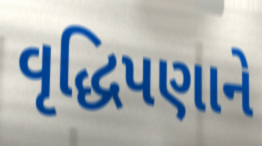
વૃદ્ધિપણાને